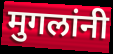
मुगलांनी